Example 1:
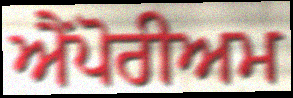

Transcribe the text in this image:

ਐਂਪੋਰੀਅਮ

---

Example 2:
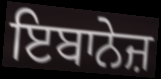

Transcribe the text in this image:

ਇਬਾਨੇਜ਼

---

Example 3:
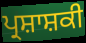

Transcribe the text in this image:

ਪ੍ਰਸ਼ਾਸ਼ਕੀ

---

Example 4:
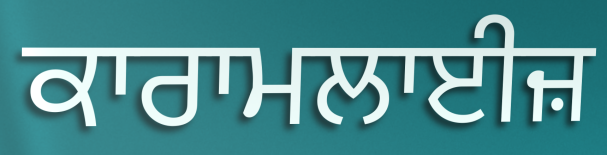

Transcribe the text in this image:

ਕਾਰਾਮਲਾਈਜ਼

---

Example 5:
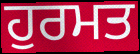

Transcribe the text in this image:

ਹੁਰਮਤ